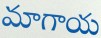
మాగాయ